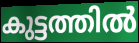
കുട്ടത്തിൽ